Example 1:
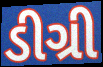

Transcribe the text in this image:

ડીગ્રી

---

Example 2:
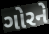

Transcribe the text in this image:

ગોરને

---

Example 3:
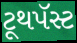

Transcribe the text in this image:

ટૂથપૅસ્ટ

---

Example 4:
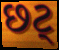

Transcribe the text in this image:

છટ્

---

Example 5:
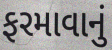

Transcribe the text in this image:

ફરમાવાનું